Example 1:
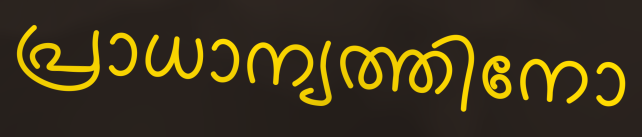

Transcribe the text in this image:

പ്രാധാന്യത്തിനോ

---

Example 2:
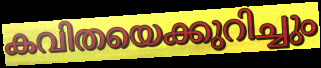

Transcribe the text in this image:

കവിതയെക്കുറിച്ചും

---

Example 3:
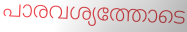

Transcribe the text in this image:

പാരവശ്യത്തോടെ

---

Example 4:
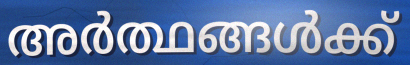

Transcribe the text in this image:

അർത്ഥങ്ങൾക്ക്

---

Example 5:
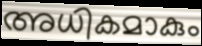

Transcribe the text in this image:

അധികമാകും